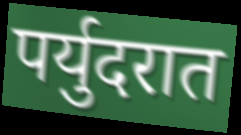
पर्युदरात